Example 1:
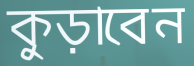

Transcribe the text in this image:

কুড়াবেন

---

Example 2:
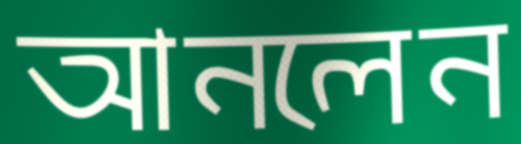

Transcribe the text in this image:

আনলেন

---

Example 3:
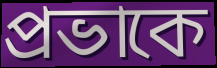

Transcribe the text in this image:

প্রভাকে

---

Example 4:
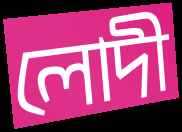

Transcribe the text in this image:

লোদী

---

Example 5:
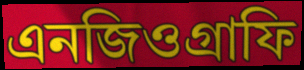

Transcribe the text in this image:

এনজিওগ্রাফি